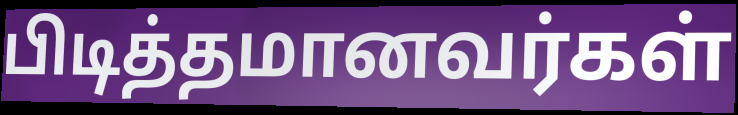
பிடித்தமானவர்கள்